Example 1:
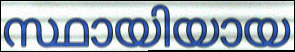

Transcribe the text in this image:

സ്ഥായിയായ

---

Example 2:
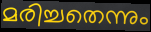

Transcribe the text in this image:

മരിച്ചതെന്നും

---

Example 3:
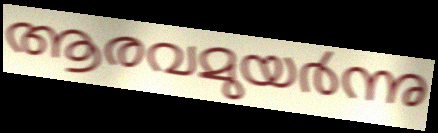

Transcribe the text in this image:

ആരവമുയർന്നു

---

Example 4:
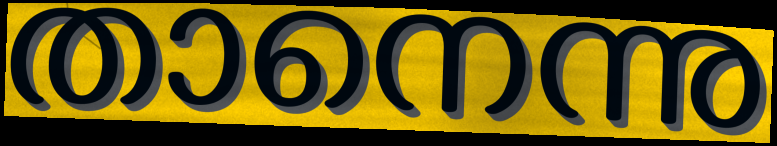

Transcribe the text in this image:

താനെന്നു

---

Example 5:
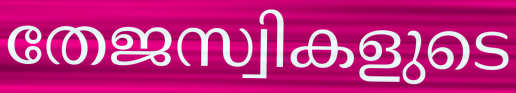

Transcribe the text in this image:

തേജസ്വികളുടെ